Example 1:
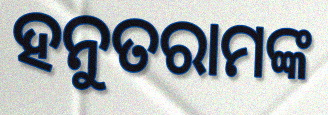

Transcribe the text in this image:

ହନୁତରାମଙ୍କ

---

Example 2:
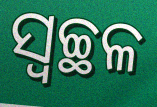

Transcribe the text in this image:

ସ୍ୱଚ୍ଛଳ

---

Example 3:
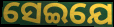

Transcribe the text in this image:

ସେଇଯେ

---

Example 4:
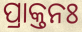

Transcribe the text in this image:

ପ୍ରାକ୍ତନଃ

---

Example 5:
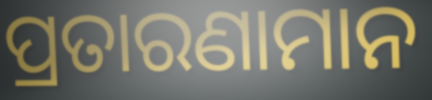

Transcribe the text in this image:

ପ୍ରତାରଣାମାନ